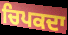
ਚਿਪਕਦਾ